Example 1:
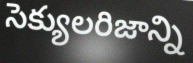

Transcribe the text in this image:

సెక్యులరిజాన్ని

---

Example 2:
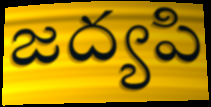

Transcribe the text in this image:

జద్యపి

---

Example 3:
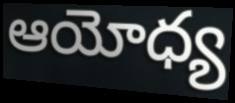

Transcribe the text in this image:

ఆయోధ్య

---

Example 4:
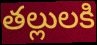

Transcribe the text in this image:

తల్లులకి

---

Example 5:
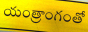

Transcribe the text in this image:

యంత్రాంగంతో